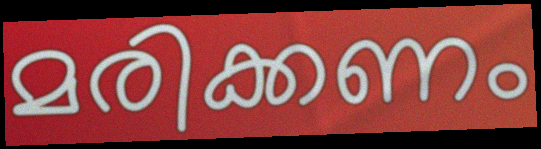
മരിക്കണം